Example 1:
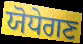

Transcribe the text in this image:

ਯੋਧੇਗਣ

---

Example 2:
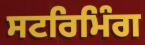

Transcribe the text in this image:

ਸਟਰਿਮਿੰਗ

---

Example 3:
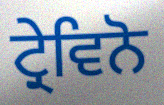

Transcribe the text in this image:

ਟ੍ਰੇਵਿਨੋ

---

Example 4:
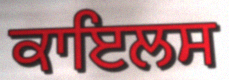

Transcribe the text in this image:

ਕਾਇਲਸ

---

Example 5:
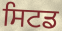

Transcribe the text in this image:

ਸਿਟਡ